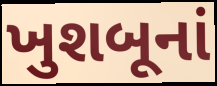
ખુશબૂનાં